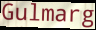
Gulmarg